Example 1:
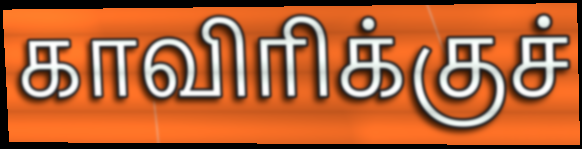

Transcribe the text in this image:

காவிரிக்குச்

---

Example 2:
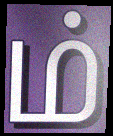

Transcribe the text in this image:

ம்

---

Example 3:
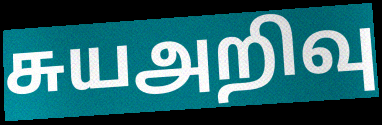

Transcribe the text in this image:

சுயஅறிவு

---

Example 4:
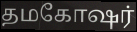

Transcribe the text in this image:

தமகோஷர்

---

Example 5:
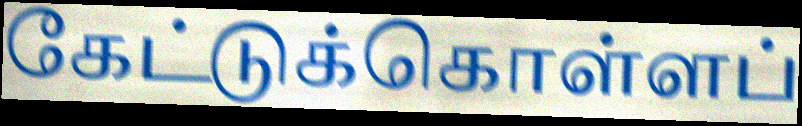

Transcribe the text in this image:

கேட்டுக்கொள்ளப்